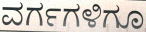
ವರ್ಗಗಳಿಗೂ